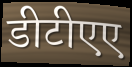
डीटीएए